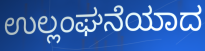
ಉಲ್ಲಂಘನೆಯಾದ